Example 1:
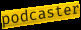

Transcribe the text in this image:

podcaster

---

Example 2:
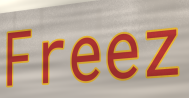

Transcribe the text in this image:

Freez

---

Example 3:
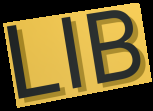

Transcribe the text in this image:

LIB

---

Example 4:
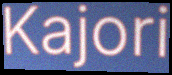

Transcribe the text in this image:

Kajori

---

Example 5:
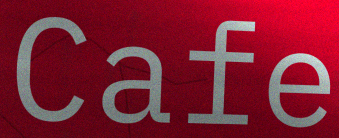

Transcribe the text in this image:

Cafe